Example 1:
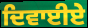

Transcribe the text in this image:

ਦਿਵਾਈਏ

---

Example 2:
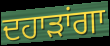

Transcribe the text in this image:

ਦਹਾੜਾਂਗਾ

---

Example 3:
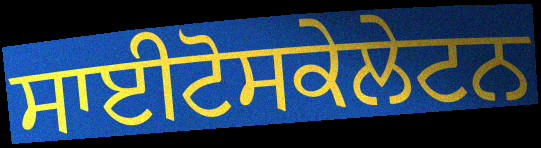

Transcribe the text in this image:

ਸਾਈਟੋਸਕੇਲੇਟਨ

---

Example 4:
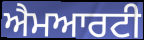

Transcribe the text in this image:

ਐਮਆਰਟੀ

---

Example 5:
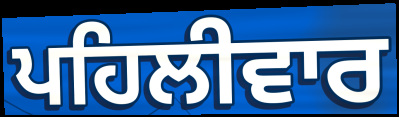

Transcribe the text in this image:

ਪਹਿਲੀਵਾਰ